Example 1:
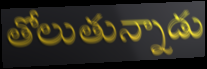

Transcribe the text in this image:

తోలుతున్నాడు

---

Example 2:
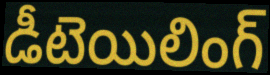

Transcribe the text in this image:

డీటెయిలింగ్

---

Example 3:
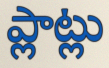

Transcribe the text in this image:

ప్లాట్లు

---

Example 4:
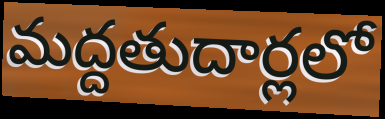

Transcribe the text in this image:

మద్దతుదార్లలో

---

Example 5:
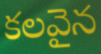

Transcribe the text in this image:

కలవైన